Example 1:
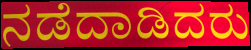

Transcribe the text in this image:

ನಡೆದಾಡಿದರು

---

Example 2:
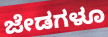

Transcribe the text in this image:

ಜೇಡಗಳೂ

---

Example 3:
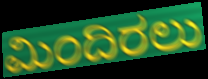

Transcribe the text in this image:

ಮಿಂದಿರಲು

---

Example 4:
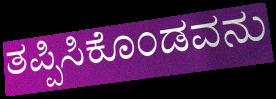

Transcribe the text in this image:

ತಪ್ಪಿಸಿಕೊಂಡವನು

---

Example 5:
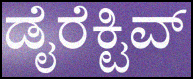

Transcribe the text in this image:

ಡೈರೆಕ್ಟಿವ್